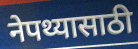
नेपथ्यासाठी